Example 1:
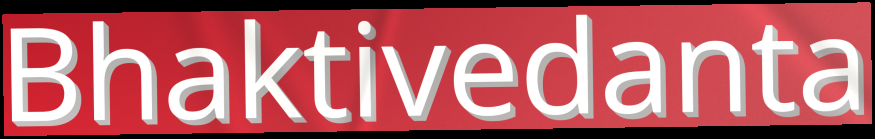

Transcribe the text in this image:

Bhaktivedanta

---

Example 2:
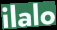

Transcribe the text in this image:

ilalo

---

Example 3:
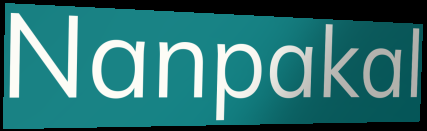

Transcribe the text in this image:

Nanpakal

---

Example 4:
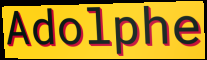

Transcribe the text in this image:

Adolphe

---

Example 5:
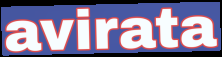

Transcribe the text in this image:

avirata